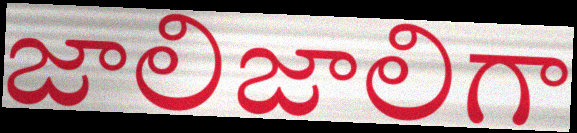
జాలిజాలిగా